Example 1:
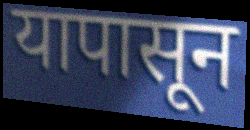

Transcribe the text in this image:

यापासून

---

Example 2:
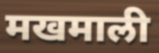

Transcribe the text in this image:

मखमाली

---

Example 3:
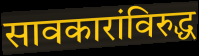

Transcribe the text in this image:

सावकारांविरुद्ध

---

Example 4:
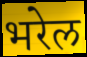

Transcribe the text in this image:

भरेल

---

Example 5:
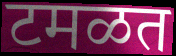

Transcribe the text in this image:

टमळत